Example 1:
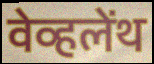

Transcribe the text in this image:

वेव्हलेंथ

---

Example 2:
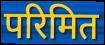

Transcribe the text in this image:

परिमित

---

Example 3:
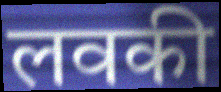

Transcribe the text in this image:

लवकी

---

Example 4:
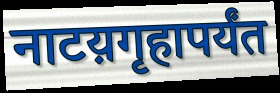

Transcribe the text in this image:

नाटय़गृहापर्यंत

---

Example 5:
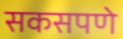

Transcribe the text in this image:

सकसपणे